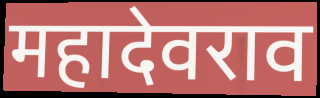
महादेवराव